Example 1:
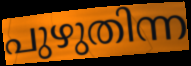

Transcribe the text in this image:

പുഴുതിന്ന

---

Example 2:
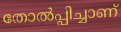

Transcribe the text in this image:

തോൽപ്പിച്ചാണ്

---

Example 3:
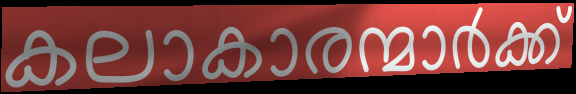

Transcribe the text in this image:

കലാകാരന്മാർക്ക്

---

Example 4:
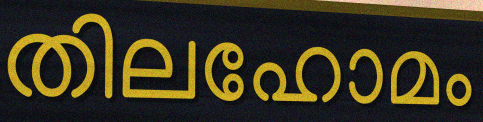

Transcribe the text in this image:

തിലഹോമം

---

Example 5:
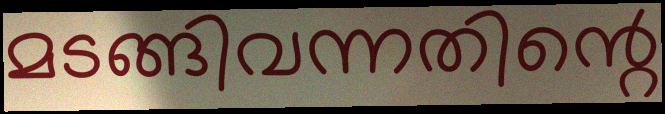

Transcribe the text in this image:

മടങ്ങിവന്നതിന്റെ